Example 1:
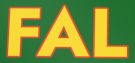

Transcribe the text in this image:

FAL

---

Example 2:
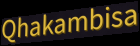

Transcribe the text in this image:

Qhakambisa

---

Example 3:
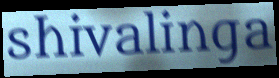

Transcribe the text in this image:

shivalinga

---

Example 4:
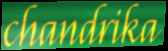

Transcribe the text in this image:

chandrika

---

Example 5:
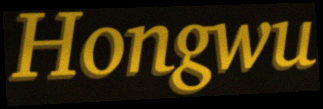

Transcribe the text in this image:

Hongwu